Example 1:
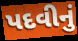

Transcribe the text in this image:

પદવીનું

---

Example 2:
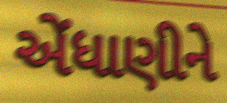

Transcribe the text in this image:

એંધાણીને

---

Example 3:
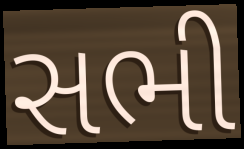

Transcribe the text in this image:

સભી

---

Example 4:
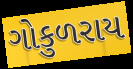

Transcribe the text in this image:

ગોકુળરાય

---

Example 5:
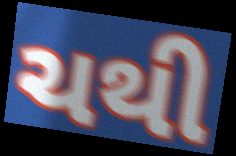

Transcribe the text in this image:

ચથી